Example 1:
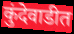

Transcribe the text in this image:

कुंदेवाडीत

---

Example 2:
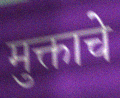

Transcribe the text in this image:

मुक्ताचे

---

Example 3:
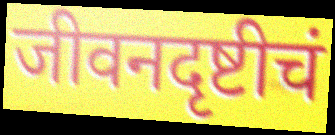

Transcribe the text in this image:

जीवनदृष्टीचं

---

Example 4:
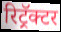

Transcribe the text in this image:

रिट्रॅक्टर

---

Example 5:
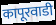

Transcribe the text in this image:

कापूरवाडी